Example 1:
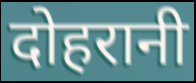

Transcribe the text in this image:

दोहरानी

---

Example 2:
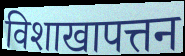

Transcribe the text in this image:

विशाखापत्तन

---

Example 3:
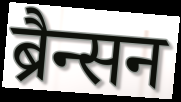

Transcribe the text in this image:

ब्रैन्सन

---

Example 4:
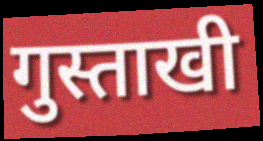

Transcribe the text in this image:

गुस्ताखी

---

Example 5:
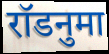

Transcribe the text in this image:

रॉडनुमा